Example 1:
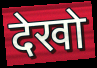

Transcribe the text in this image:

देखो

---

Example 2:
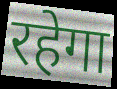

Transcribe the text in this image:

रहेगा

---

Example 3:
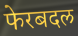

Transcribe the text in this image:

फेरबदल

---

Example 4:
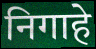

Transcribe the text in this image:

निगाहे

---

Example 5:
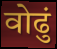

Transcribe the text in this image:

वोढुं